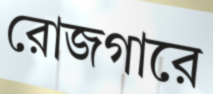
রোজগারে